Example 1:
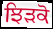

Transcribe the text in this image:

ਝਿੜਕੋ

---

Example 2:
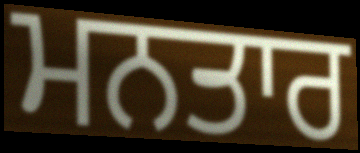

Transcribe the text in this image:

ਮਨਤਾਰ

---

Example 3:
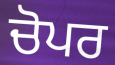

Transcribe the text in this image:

ਚੋਪਰ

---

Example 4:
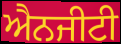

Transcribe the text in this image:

ਐਨਜੀਟੀ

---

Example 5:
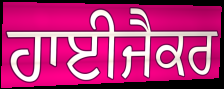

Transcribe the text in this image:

ਹਾਈਜੈਕਰ